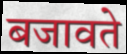
बजावते